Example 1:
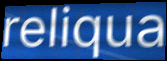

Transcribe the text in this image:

reliqua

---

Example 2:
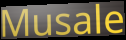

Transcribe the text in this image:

Musale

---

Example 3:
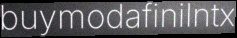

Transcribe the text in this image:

buymodafinilntx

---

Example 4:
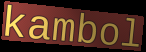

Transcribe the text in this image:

kambol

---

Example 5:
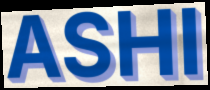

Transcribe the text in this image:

ASHI